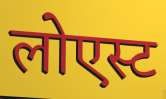
लोएस्ट